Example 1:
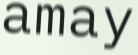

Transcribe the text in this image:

amay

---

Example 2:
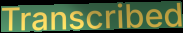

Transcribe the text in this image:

Transcribed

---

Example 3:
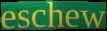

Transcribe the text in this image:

eschew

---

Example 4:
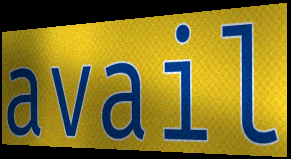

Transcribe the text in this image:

avail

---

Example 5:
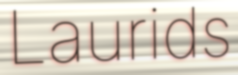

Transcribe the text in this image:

Laurids